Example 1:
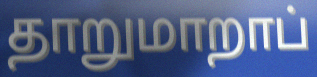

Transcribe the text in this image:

தாறுமாறாப்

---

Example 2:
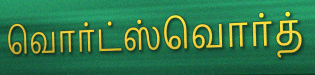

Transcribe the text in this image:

வொர்ட்ஸ்வொர்த்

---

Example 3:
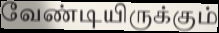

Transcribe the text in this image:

வேண்டியிருக்கும்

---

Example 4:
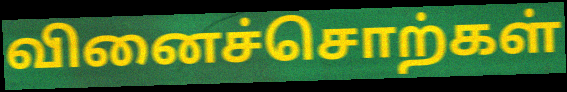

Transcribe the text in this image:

வினைச்சொற்கள்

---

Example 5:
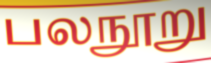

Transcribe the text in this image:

பலநூறு